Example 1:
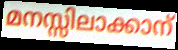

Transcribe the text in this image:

മനസ്സിലാക്കാന്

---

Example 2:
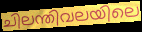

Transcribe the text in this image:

ചിലന്തിവലയിലെ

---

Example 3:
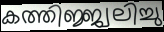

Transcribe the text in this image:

കത്തിജ്ജ്വലിച്ചു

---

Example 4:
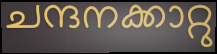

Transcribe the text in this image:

ചന്ദനക്കാറ്റു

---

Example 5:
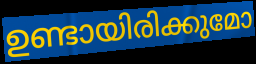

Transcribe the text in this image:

ഉണ്ടായിരിക്കുമോ